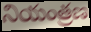
నియంత్రణ